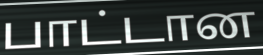
பாட்டான